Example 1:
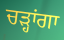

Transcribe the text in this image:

ਚੜ੍ਹਾਂਗਾ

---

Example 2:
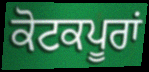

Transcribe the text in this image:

ਕੋਟਕਪੂਰਾਂ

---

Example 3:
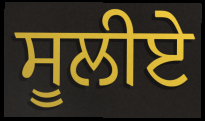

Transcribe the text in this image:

ਸੂਲੀਏ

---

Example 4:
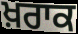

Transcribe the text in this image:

ਖ਼ਰਾਕ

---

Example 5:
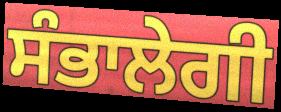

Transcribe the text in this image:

ਸੰਭਾਲੇਗੀ